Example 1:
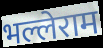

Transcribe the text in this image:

भल्लेराम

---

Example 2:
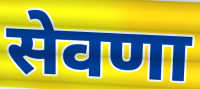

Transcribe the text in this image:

सेवणा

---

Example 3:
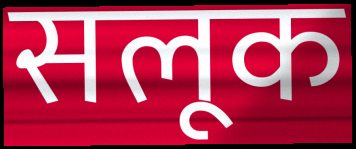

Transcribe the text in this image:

सलूक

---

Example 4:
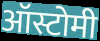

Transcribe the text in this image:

ऑस्टोमी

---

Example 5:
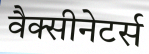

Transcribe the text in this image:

वैक्सीनेटर्स